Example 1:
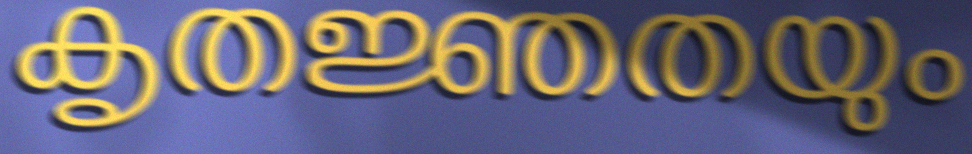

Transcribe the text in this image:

കൃതജ്ഞതയും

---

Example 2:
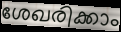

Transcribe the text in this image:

ശേഖരിക്കാം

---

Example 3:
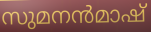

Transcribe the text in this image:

സുമനൻമാഷ്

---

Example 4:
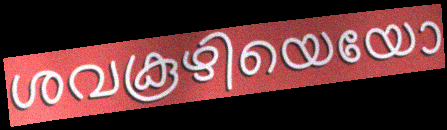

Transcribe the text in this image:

ശവകൂഴിയെയോ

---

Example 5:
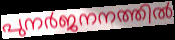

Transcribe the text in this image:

പുനർജനനത്തിൽ